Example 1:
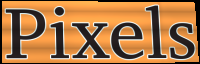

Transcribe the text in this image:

Pixels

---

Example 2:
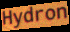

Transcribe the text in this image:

Hydron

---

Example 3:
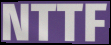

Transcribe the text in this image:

NTTF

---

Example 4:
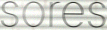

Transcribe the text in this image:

sores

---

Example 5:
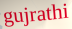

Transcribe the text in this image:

gujrathi